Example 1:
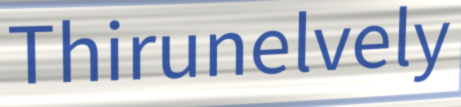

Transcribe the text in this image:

Thirunelvely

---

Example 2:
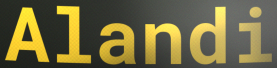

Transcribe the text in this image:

Alandi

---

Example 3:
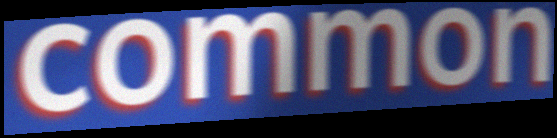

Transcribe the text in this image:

common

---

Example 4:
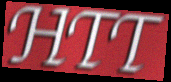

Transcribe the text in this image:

HTT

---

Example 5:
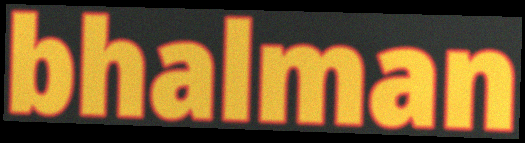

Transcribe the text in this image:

bhalman